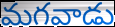
మగవాడు